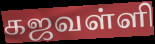
கஜவள்ளி